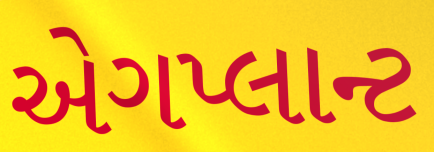
એગપ્લાન્ટ